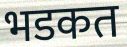
भडकत